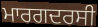
ਮਾਰਗਦਰਸੀ